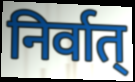
निर्वात्